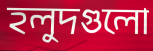
হলুদগুলো